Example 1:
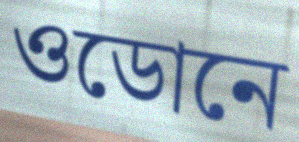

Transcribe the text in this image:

ওডোনে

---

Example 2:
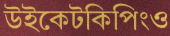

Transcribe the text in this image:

উইকেটকিপিংও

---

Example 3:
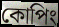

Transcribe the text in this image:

কোপিং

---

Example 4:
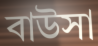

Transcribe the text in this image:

বাউসা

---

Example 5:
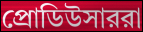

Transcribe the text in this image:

প্রোডিউসাররা